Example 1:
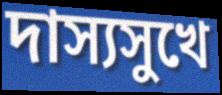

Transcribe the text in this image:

দাস্যসুখে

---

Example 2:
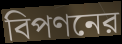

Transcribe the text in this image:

বিপণনের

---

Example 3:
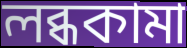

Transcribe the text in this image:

লব্ধকামা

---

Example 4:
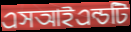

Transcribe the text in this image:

এসআইএন্ডটি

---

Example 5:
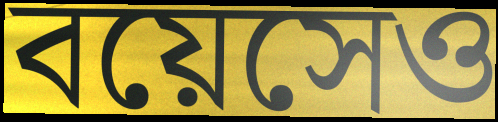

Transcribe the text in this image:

বয়েসেও